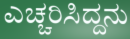
ಎಚ್ಚರಿಸಿದ್ದನು